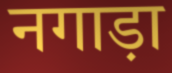
नगाड़ा